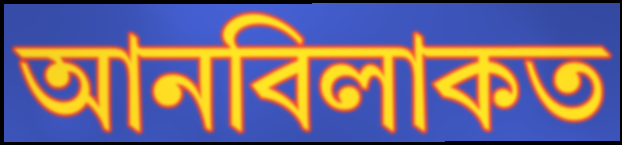
আনবিলাকত